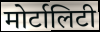
मोर्टालिटी